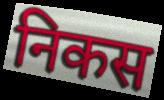
निकस